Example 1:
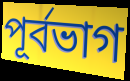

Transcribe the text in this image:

পূর্বভাগ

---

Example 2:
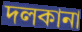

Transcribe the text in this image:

দলকানা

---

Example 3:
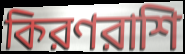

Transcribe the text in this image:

কিরণরাশি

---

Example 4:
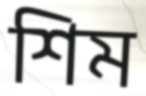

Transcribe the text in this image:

শিম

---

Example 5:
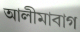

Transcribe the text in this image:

আলীমাবাগ